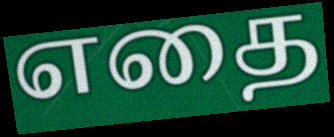
எதை